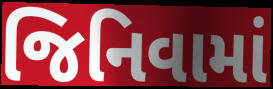
જિનિવામાં